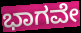
ಭಾಗವೇ